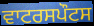
ਵਾਟਰਸਪੌਟਸ